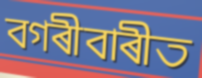
বগৰীবাৰীত